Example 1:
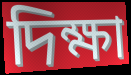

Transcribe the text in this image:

দিক্ষা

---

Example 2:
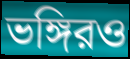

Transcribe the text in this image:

ভঙ্গিরও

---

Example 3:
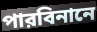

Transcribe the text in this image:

পারবিনানে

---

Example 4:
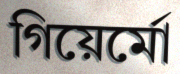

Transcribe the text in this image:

গিয়ের্মো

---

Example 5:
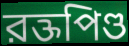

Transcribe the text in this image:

রক্তপিণ্ড